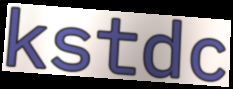
kstdc